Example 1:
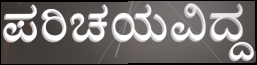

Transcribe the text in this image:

ಪರಿಚಯವಿದ್ದ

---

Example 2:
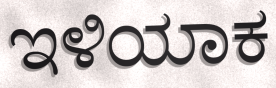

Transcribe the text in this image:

ಇಳಿಯಾಕ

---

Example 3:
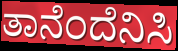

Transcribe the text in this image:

ತಾನೆಂದೆನಿಸಿ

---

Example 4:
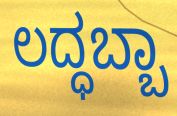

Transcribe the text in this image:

ಲದ್ಧಬ್ಬಾ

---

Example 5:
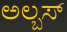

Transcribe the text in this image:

ಅಲ್ಬಸ್